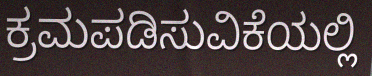
ಕ್ರಮಪಡಿಸುವಿಕೆಯಲ್ಲಿ